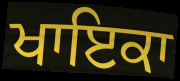
ਖਾਇਕਾ